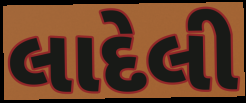
લાદેલી